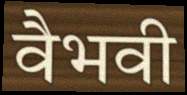
वैभवी